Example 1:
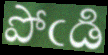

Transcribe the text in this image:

పోఁడి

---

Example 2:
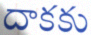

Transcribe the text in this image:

దాకకు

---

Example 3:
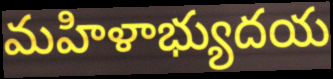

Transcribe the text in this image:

మహిళాభ్యుదయ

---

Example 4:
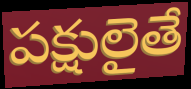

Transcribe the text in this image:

పక్షులైతే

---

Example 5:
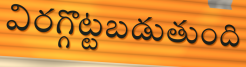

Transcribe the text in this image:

విరగ్గొట్టబడుతుంది